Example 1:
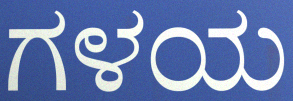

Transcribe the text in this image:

ಗಳಯ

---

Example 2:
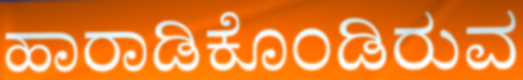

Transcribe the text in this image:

ಹಾರಾಡಿಕೊಂಡಿರುವ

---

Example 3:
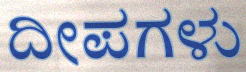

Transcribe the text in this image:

ದೀಪಗಳು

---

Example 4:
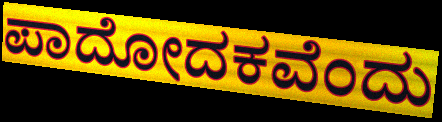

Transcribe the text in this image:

ಪಾದೋದಕವೆಂದು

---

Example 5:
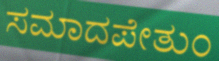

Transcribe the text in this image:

ಸಮಾದಪೇತುಂ